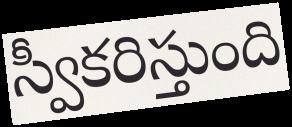
స్వీకరిస్తుంది